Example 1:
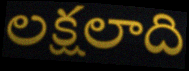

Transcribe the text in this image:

లక్షలాది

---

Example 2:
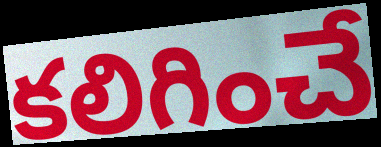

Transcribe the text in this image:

కలిగించే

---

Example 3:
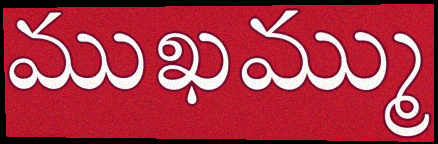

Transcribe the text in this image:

ముఖమ్ము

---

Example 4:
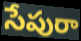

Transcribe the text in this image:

సేపురా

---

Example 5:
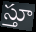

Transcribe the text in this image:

స్తూ